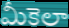
మీకెలా